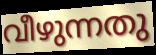
വീഴുന്നതു